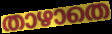
താഴാതെ